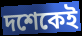
দশেকেই